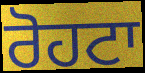
ਰੋਹਟਾ